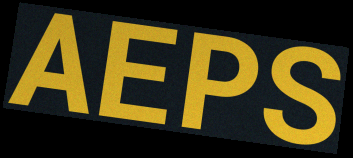
AEPS